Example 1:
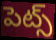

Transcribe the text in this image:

పెట్స్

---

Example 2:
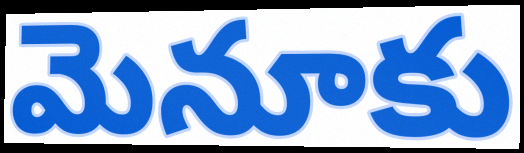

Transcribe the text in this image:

మెనూకు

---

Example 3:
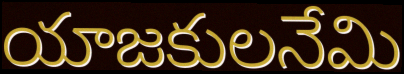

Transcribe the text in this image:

యాజకులనేమి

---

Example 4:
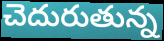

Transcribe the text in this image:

చెదురుతున్న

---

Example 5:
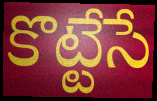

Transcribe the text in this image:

కొట్టేసే